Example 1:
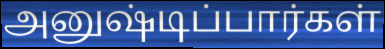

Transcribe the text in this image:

அனுஷ்டிப்பார்கள்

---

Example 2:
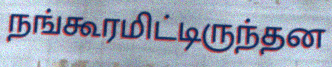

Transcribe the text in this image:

நங்கூரமிட்டிருந்தன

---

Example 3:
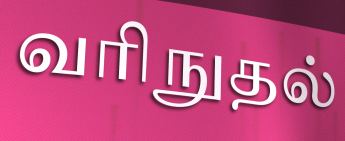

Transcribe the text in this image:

வரிநுதல்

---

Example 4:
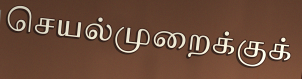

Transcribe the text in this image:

செயல்முறைக்குக்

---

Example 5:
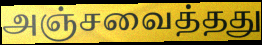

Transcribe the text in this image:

அஞ்சவைத்தது